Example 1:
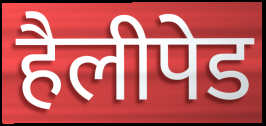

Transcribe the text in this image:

हैलीपेड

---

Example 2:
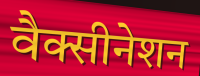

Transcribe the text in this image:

वैक्सीनेशन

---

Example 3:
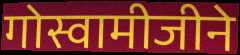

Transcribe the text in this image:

गोस्वामीजीने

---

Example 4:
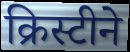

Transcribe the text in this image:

क्रिस्टीने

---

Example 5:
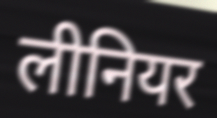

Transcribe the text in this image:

लीनियर